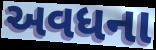
અવધના